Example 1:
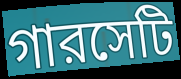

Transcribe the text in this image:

গারসেটি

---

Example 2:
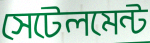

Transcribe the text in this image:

সেটেলমেন্ট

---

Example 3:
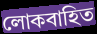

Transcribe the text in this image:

লোকবাহিত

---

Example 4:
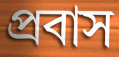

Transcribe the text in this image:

প্রবাস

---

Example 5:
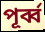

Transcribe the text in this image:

পূর্ব্ব